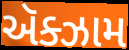
ઍક્ઝામ